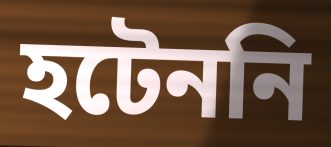
হটেননি